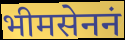
भीमसेननं